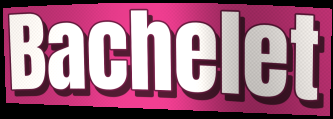
Bachelet